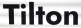
Tilton